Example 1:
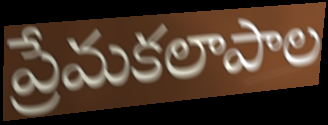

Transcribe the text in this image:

ప్రేమకలాపాల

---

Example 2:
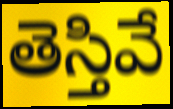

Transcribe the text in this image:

తెస్తివే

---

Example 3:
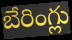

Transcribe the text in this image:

బేరింగ్లు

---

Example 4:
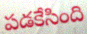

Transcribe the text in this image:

పడకేసింది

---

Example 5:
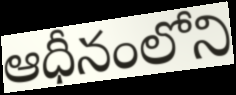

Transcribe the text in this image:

ఆధీనంలోని